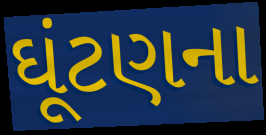
ઘૂંટણના